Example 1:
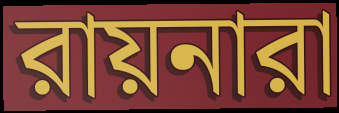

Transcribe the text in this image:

রায়নারা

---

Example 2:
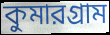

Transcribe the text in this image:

কুমারগ্রাম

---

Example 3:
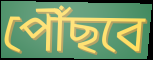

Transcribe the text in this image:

পৌঁছবে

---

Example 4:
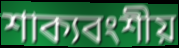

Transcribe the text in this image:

শাক্যবংশীয়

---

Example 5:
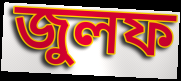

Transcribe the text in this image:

জুলফ